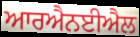
ਆਰਐਨਈਐਲ